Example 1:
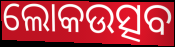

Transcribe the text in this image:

ଲୋକଉତ୍ସବ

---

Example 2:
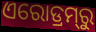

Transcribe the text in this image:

ଏରୋଡ୍ରମ୍‍ରୁ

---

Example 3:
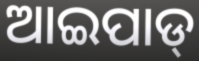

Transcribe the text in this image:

ଆଇପାଡ୍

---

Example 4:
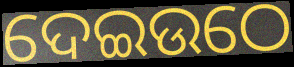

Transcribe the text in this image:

ଦେଇଉଠେ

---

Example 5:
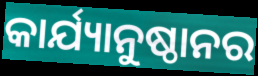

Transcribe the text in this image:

କାର୍ଯ୍ୟାନୁଷ୍ଠାନର